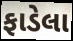
ફાડેલા